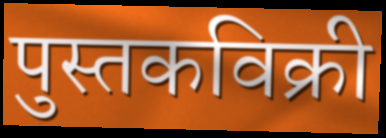
पुस्तकविक्री